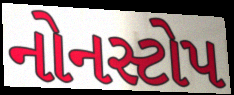
નોનસ્ટોપ